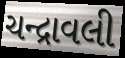
ચન્દ્રાવલી